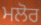
ਮਲੋਰ